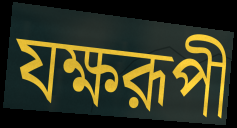
যক্ষরূপী